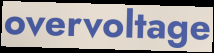
overvoltage